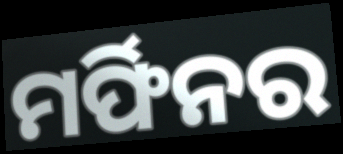
ମର୍ଫିନର